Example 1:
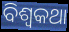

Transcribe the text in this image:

ବିଶ୍ୱକଥା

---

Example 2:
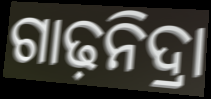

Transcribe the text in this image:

ଗାଢ଼ନିଦ୍ରା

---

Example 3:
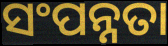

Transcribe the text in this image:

ସଂପନ୍ନତା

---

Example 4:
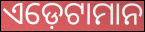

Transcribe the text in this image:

ଏଡ଼େଟାମାନ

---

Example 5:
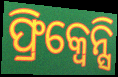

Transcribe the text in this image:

ଫ୍ରିକ୍ୱେନ୍ସି